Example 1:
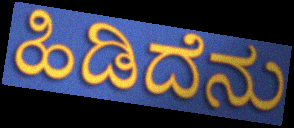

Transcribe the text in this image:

ಹಿಡಿದೆನು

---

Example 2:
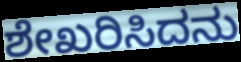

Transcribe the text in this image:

ಶೇಖರಿಸಿದನು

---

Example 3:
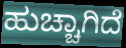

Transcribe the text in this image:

ಹುಚ್ಚಾಗಿದೆ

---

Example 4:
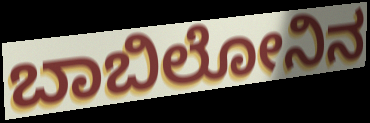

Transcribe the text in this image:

ಬಾಬಿಲೋನಿನ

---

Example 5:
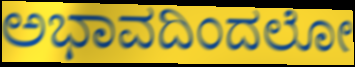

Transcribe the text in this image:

ಅಭಾವದಿಂದಲೋ